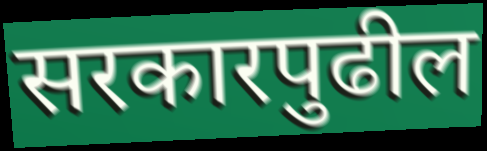
सरकारपुढील